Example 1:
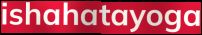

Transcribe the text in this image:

ishahatayoga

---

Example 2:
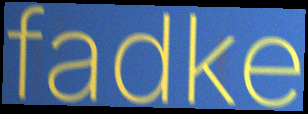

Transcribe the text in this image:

fadke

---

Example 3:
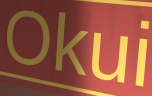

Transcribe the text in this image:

Okui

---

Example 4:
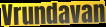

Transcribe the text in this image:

Vrundavan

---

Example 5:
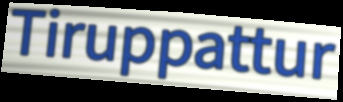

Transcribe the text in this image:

Tiruppattur